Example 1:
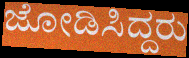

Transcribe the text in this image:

ಜೋಡಿಸಿದ್ದರು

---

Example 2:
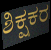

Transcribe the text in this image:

ಶಿಕ್ಷಕರ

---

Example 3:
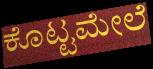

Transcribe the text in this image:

ಕೊಟ್ಟಮೇಲೆ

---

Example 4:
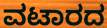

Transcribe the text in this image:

ವಟಾರದ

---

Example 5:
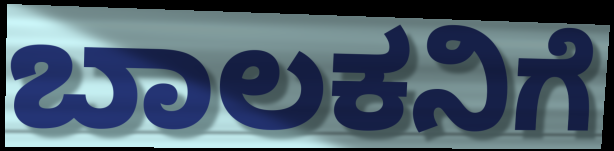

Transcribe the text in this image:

ಬಾಲಕನಿಗೆ